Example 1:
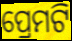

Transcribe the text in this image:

ପ୍ରେମଟି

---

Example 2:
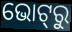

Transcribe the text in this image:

ଭୋଟ୍‌ରୁ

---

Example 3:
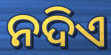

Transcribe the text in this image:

ନଦିଏ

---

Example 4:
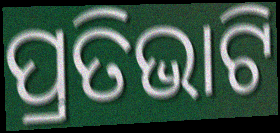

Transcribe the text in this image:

ପ୍ରତିଭାଟି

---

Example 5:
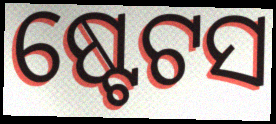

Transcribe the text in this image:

ଷ୍ଟେଟସ